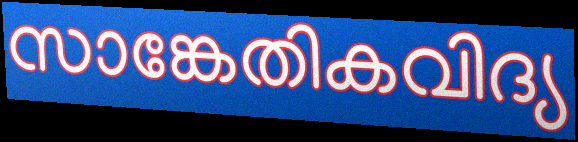
സാങ്കേതികവിദ്യ